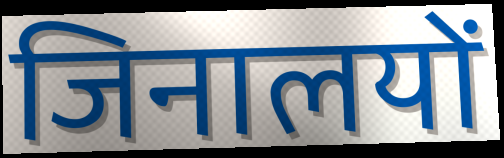
जिनालयों